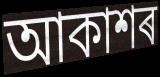
আকাশৰ